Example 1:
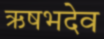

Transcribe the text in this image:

ऋषभदेव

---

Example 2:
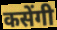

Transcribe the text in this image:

कसेंगी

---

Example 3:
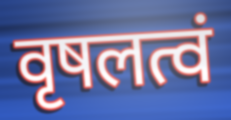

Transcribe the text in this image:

वृषलत्वं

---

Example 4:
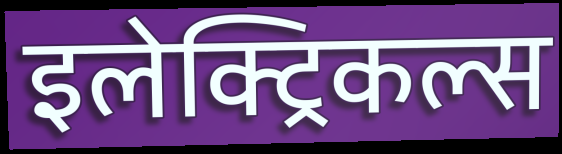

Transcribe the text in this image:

इलेक्ट्रिकल्स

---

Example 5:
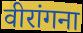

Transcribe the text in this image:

वीरांगना